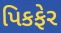
પિકફેર